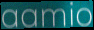
aamio